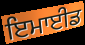
ਇਮਾਈਡ